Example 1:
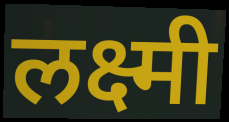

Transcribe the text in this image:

लक्ष्मी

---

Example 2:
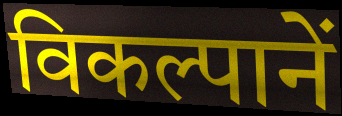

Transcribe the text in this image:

विकल्पानें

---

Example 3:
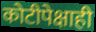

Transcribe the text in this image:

कोटीपेक्षाही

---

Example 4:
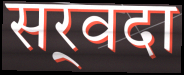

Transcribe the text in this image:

सर्वदा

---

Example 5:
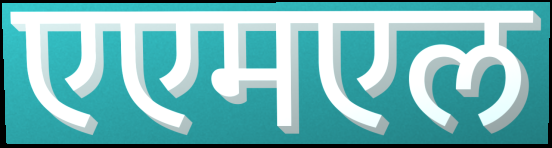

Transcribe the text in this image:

एएमएल